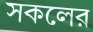
সকলের